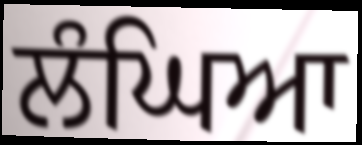
ਲੰਘਿਆ